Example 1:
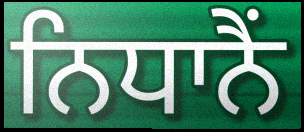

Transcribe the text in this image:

ਨਿਧਾਨੈਂ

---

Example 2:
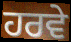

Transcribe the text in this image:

ਹਰਵੇ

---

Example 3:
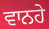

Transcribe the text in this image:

ਵਾਨਹੇ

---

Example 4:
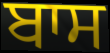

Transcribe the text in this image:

ਬਾਸ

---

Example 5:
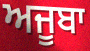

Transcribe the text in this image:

ਅਜੂਬਾ